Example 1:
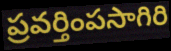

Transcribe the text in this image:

ప్రవర్తింపసాగిరి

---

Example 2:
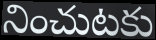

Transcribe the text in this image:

నించుటకు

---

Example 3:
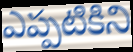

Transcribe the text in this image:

ఎప్పటికిని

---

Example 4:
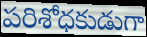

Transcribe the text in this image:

పరిశోధకుడుగా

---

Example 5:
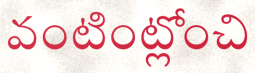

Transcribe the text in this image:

వంటింట్లోంచి